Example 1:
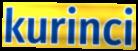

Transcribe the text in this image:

kurinci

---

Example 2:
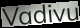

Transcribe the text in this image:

Vadivu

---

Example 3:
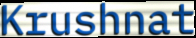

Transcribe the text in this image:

Krushnat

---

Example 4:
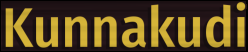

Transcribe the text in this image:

Kunnakudi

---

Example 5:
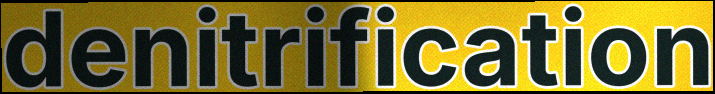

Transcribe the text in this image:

denitrification